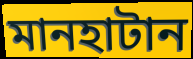
মানহাটান